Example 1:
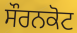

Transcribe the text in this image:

ਸੌਰਨਕੋਟ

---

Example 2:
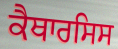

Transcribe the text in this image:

ਕੈਥਾਰਸਿਸ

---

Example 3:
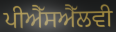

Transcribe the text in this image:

ਪੀਐੱਸਐੱਲਵੀ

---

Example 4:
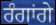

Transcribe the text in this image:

ਰੰਗਾਂਗੇ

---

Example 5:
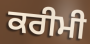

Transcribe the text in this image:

ਕਰੀਮੀ